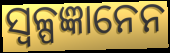
ସ୍ଵଳ୍ପଜ୍ଞାନେନ